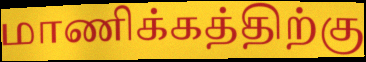
மாணிக்கத்திற்கு